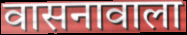
वासनावाला